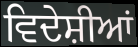
ਵਿਦੇਸ਼ੀਆਂ